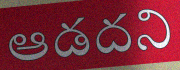
ఆడదని